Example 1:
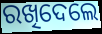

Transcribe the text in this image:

ରଖିଦେଲେ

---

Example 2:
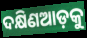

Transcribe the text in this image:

ଦକ୍ଷିଣଆଡ଼କୁ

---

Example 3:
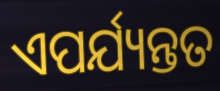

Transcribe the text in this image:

ଏପର୍ଯ୍ୟନ୍ତତ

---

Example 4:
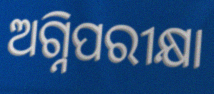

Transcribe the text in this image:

ଅଗ୍ନିପରୀକ୍ଷା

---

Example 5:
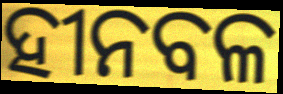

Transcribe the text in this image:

ହୀନବଳ